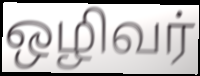
ஒழிவர்